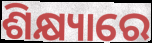
ଶିକ୍ଷ୍ୟାରେ